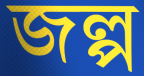
জল্প